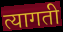
त्यागती